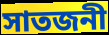
সাতজনী